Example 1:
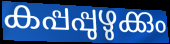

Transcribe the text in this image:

കപ്പപ്പുഴുക്കും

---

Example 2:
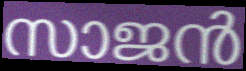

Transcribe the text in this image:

സാജൻ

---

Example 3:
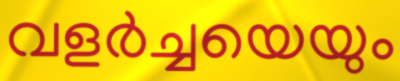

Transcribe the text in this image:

വളർച്ചയെയും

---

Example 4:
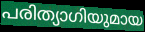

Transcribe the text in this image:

പരിത്യാഗിയുമായ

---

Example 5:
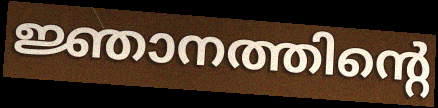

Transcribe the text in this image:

ജ്ഞാനത്തിന്റെ